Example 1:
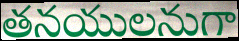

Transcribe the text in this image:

తనయులనుగా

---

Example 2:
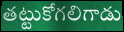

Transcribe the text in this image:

తట్టుకోగలిగాడు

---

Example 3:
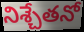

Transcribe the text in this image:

నిశ్చేతనో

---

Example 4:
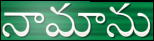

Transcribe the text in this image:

నామాను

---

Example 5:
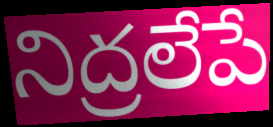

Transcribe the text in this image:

నిద్రలేపే